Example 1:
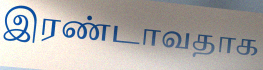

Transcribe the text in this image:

இரண்டாவதாக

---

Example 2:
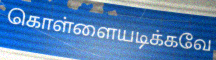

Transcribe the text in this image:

கொள்ளையடிக்கவே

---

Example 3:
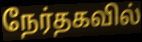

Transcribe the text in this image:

நேர்தகவில்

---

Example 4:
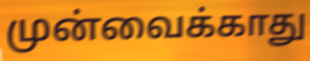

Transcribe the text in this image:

முன்வைக்காது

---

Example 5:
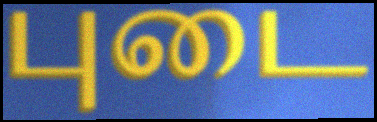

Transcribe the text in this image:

புடை